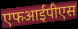
एफआईपीएस